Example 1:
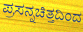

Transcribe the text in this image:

ಪ್ರಸನ್ನಚಿತ್ತದಿಂದ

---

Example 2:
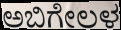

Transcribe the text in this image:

ಅಬಿಗೇಲಳ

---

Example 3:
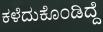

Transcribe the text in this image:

ಕಳೆದುಕೊಂಡಿದ್ದೆ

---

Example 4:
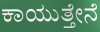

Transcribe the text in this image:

ಕಾಯುತ್ತೇನೆ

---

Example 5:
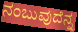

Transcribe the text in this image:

ನಂಬುವುದೆನ್ನ